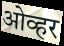
ओव्हर